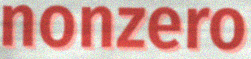
nonzero